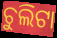
ଚୁଲିଟା